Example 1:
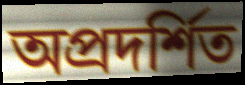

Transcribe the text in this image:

অপ্রদর্শিত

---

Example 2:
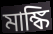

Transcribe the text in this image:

মাঙ্কি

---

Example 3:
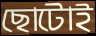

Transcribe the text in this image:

ছোটোই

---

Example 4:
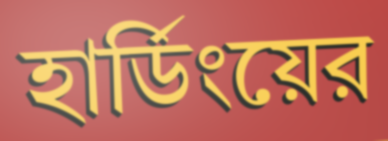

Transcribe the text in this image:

হার্ডিংয়ের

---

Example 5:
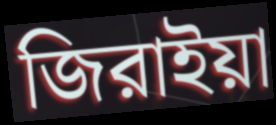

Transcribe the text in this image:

জিরাইয়া